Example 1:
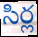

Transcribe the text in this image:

సిర్ల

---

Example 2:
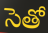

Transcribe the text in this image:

సెతో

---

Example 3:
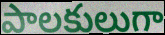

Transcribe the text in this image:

పాలకులుగా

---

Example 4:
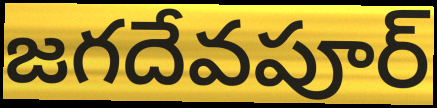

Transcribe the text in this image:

జగదేవపూర్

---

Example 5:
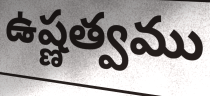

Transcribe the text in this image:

ఉష్ణత్వము